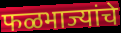
फळभाज्यांचे